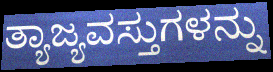
ತ್ಯಾಜ್ಯವಸ್ತುಗಳನ್ನು